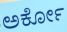
ಅರ್ಕೋ